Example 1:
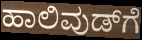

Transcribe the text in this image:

ಹಾಲಿವುಡ್‌ಗೆ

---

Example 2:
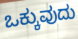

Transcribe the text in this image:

ಒಕ್ಕುವುದು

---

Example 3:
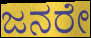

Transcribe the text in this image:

ಜನರೇ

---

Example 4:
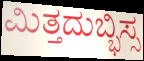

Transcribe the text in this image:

ಮಿತ್ತದುಬ್ಭಿಸ್ಸ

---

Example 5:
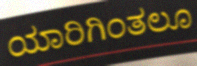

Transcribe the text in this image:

ಯಾರಿಗಿಂತಲೂ